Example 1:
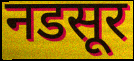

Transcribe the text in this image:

नडसूर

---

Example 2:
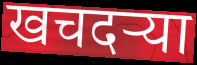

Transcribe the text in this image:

खचदऱ्या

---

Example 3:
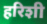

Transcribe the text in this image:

हरिशी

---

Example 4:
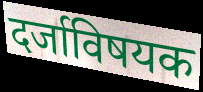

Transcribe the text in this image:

दर्जाविषयक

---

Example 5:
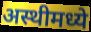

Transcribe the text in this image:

अस्थीमध्ये